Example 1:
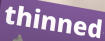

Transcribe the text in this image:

thinned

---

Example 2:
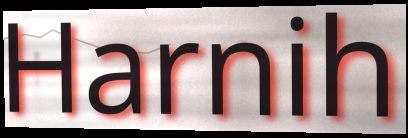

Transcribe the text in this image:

Harnih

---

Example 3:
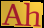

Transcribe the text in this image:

Ah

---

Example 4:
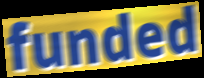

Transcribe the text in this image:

funded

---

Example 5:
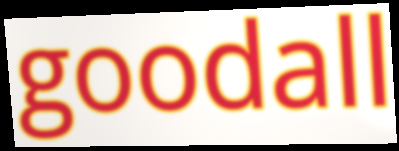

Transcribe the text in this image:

goodall